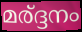
മര്ദ്ദനം